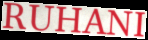
RUHANI